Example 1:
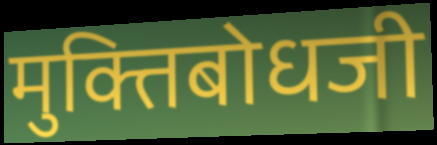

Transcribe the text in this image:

मुक्तिबोधजी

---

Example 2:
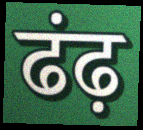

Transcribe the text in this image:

ढंढ़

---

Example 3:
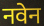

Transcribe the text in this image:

नवेन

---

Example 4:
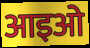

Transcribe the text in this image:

आइओ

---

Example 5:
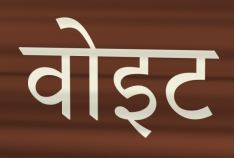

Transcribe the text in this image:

वोइट